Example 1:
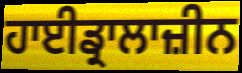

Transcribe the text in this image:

ਹਾਈਡ੍ਰਾਲਾਜ਼ੀਨ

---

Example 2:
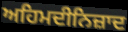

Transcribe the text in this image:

ਅਹਿਮਦੀਨਿਜ਼ਾਦ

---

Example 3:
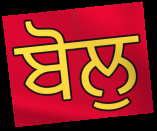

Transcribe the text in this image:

ਬੋਲੁ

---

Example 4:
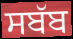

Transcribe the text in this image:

ਸਬੱਬ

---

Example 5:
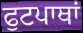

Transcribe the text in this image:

ਫੁਟਪਾਥਾਂ